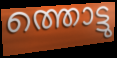
ത്തൊട്ടു